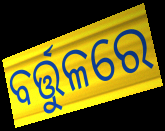
ବର୍ତ୍ତୁଳରେ